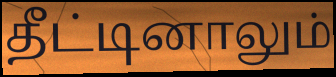
தீட்டினாலும்